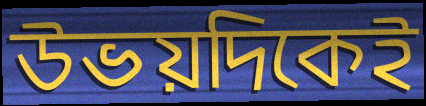
উভয়দিকেই